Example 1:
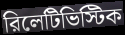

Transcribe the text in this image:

রিলেটিভিস্টিক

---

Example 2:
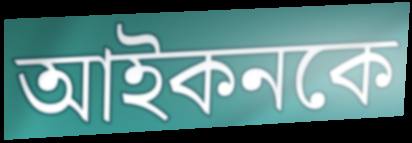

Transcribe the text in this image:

আইকনকে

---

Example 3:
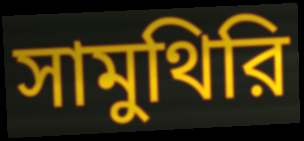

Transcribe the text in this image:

সামুথিরি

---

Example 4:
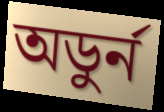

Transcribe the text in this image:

অডুর্ন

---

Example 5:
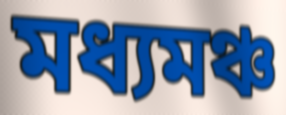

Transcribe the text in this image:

মধ্যমঞ্চ